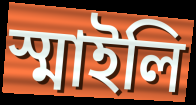
স্মাইলি